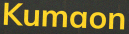
Kumaon